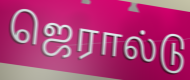
ஜெரால்டு